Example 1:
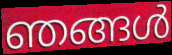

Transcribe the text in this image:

ഞങ്ങൾ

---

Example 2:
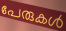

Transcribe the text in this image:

പേരുകൾ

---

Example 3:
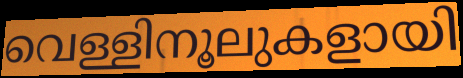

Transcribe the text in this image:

വെള്ളിനൂലുകളായി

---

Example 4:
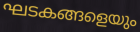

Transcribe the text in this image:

ഘടകങ്ങളെയും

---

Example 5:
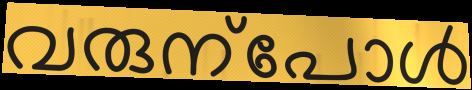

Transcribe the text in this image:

വരുന്പോൾ